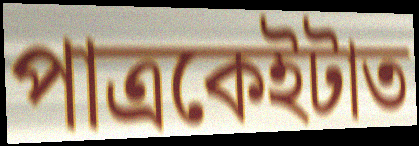
পাত্ৰকেইটাত